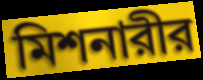
মিশনারীর